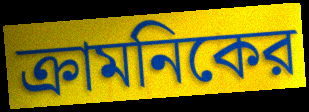
ক্রামনিকের